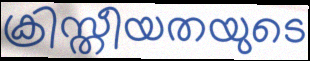
ക്രിസ്തീയതയുടെ